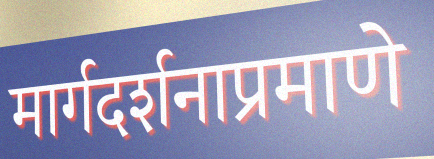
मार्गदर्शनाप्रमाणे